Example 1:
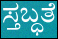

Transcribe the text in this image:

ಸ್ತಬ್ಧತೆ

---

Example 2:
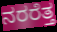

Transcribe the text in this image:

ನರರೆತ್ತ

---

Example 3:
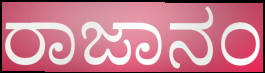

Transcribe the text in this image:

ರಾಜಾನಂ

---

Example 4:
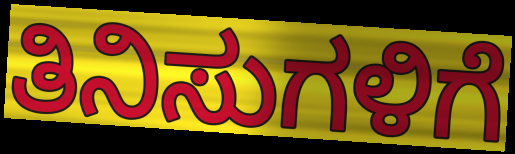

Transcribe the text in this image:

ತಿನಿಸುಗಳಿಗೆ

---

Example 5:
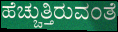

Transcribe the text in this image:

ಹೆಚ್ಚುತ್ತಿರುವಂತೆ